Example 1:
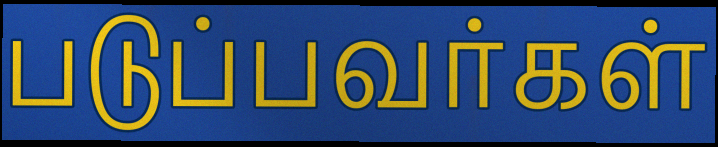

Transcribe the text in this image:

படுப்பவர்கள்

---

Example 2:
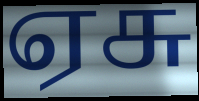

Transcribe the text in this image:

ஏசு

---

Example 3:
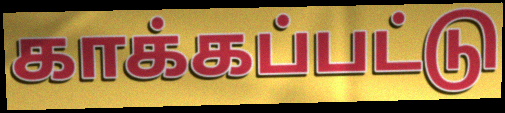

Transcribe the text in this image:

காக்கப்பட்டு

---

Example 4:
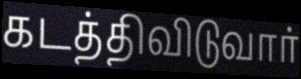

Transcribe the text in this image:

கடத்திவிடுவார்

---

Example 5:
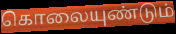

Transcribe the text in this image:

கொலையுண்டும்